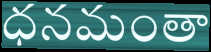
ధనమంతా